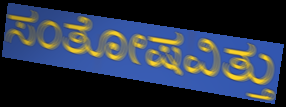
ಸಂತೋಷವಿತ್ತು